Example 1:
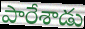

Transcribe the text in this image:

పారేశాడు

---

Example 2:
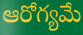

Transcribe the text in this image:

ఆరోగ్యమే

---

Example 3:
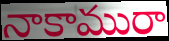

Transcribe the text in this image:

నాకామురా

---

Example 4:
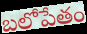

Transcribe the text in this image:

బలోపేతం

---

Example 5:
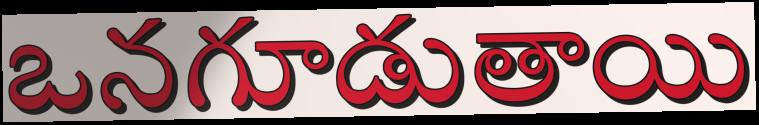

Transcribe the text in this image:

ఒనగూడుతాయి